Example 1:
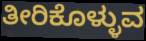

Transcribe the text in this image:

ತೀರಿಕೊಳ್ಳುವ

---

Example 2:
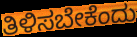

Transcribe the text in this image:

ತಿಳಿಸಬೇಕೆಂದು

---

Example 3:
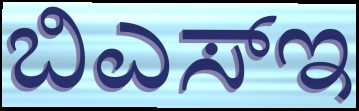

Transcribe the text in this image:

ಬಿಎಸ್ಇ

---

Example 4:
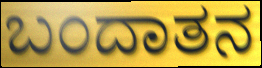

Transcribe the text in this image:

ಬಂದಾತನ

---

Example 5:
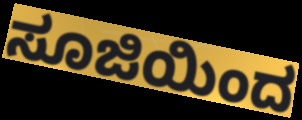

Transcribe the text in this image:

ಸೂಜಿಯಿಂದ